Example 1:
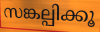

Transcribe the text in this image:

സങ്കല്പിക്കൂ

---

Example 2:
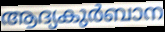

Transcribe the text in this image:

ആദ്യകുർബാന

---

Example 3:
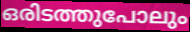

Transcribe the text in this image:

ഒരിടത്തുപോലും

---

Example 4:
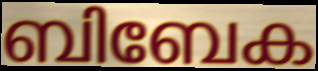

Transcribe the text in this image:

ബിബേക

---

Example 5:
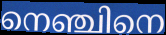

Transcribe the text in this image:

നെഞ്ചിനെ